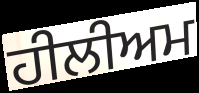
ਹੀਲੀਅਮ